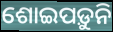
ଶୋଇପଡ଼ୁନି